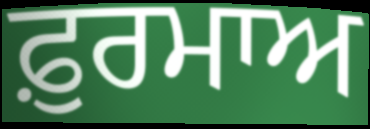
ਫ਼ੁਰਮਾਅ